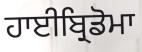
ਹਾਈਬ੍ਰਿਡੋਮਾ